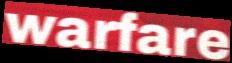
warfare